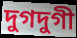
দুগদুগী